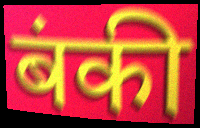
बंकी